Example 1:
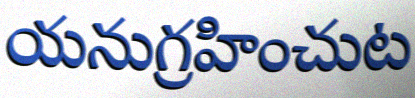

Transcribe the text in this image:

యనుగ్రహించుట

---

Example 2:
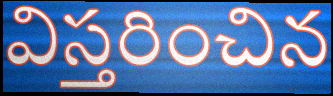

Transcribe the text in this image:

విస్తరించిన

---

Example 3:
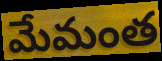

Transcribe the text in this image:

మేమంత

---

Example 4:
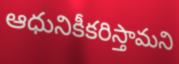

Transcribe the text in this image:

ఆధునికీకరిస్తామని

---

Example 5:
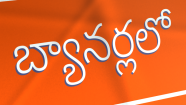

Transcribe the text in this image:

బ్యానర్లలో